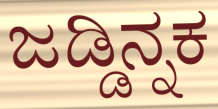
ಜಡ್ಡಿನ್ನಕ